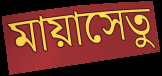
মায়াসেতু